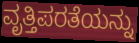
ವೃತ್ತಿಪರತೆಯನ್ನು